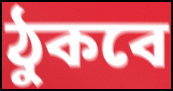
ঠুকবে